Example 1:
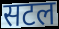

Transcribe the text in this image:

सटल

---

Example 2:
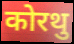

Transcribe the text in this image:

कोरथु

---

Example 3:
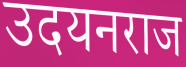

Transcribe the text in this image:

उदयनराज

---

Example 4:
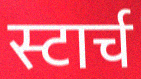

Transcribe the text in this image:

स्टार्च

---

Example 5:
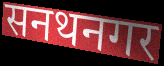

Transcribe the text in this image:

सनथनगर